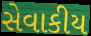
સેવાકીય